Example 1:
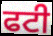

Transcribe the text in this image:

ਫਟੀ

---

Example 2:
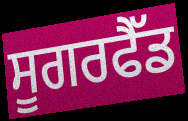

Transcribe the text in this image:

ਸੂਗਰਫੈੱਡ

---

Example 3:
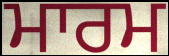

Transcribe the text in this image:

ਮਾਰਮ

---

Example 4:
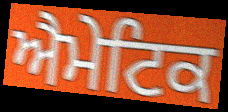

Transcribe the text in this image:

ਐਮੇਟਿਕ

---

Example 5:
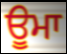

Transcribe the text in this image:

ਊਮਾ